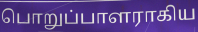
பொறுப்பாளராகிய